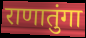
राणातुंगा